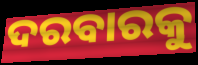
ଦରବାରକୁ